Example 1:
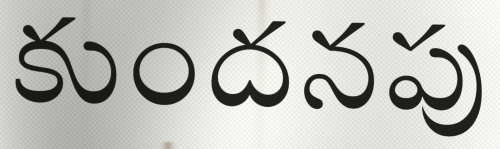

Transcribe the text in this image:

కుందనపు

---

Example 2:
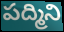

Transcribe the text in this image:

పద్మిని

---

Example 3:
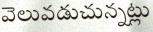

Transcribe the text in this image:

వెలువడుచున్నట్లు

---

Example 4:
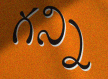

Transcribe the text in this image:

గన్ని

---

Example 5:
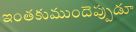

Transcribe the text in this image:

ఇంతకుముందెప్పుడూ